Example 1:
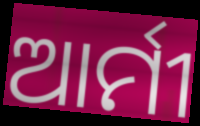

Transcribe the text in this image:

ଆର୍ମୀ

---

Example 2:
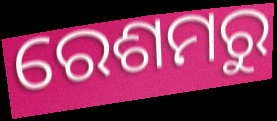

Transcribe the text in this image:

ରେଶମରୁ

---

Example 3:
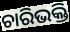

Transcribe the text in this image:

ଚାରିଭକ୍ତି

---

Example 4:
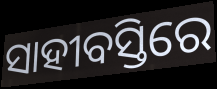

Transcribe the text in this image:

ସାହୀବସ୍ତିରେ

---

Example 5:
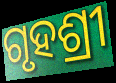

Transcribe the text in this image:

ଗୃହଶ୍ରୀ